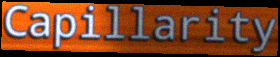
Capillarity